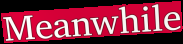
Meanwhile